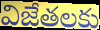
విజేతలకు